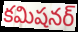
కమిషనర్